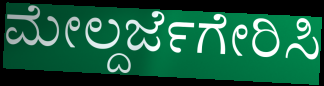
ಮೇಲ್ದರ್ಜೆಗೇರಿಸಿ